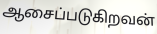
ஆசைப்படுகிறவன்